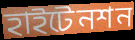
হাইটেনশন